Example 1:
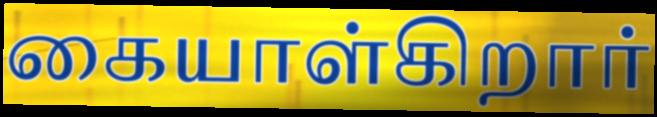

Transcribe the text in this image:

கையாள்கிறார்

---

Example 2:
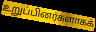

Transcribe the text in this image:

உறுப்பினர்களாகக்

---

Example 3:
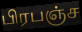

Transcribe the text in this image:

பிரபஞ்ச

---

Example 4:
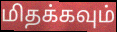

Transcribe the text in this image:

மிதக்கவும்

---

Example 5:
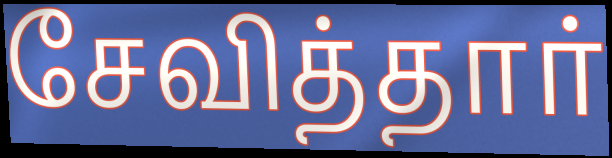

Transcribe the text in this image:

சேவித்தார்